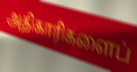
அதிகாரிகளைப்